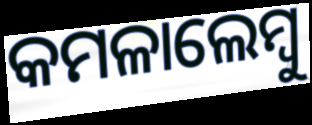
କମଳାଲେମ୍ୱୁ